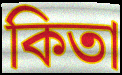
কিতা